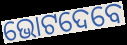
ଭୋଟଦେବେ